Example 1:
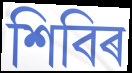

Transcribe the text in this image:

শিবিৰ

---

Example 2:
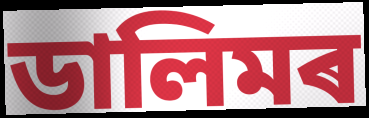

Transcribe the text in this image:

ডালিমৰ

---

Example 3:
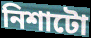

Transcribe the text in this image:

নিশাটো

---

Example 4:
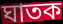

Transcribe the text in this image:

ঘাতক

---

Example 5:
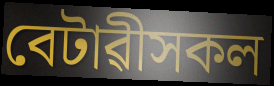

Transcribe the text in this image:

বেটাৱীসকল